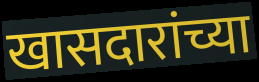
खासदारांच्या